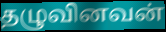
தழுவினவன்